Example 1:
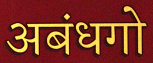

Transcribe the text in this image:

अबंधगो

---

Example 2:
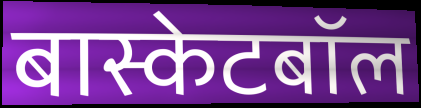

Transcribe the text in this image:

बास्‍केटबॉल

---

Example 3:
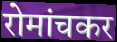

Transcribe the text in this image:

रोमांचकर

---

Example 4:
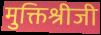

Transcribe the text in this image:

मुक्तिश्रीजी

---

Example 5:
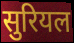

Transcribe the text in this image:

सुरियल